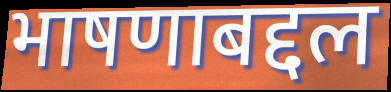
भाषणाबद्दल